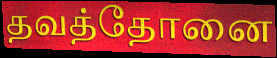
தவத்தோனை